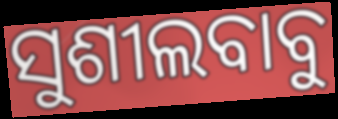
ସୁଶୀଲବାବୁ